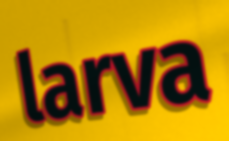
larva